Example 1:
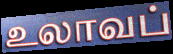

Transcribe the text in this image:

உலாவப்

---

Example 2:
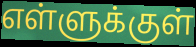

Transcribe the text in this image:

எள்ளுக்குள்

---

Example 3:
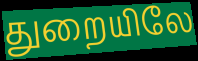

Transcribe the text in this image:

துறையிலே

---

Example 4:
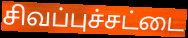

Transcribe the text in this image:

சிவப்புச்சட்டை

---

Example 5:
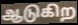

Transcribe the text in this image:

ஆடுகிற